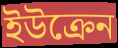
ইউক্রেন